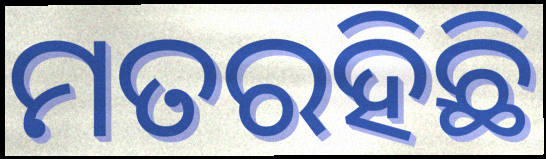
ମତରହିଛି